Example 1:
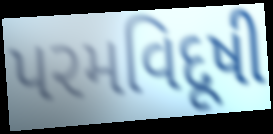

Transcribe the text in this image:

પરમવિદૂષી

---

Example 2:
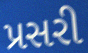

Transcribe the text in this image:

પ્રસરી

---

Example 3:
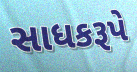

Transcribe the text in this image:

સાધકરૂપે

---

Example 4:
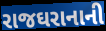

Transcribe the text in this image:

રાજઘરાનાની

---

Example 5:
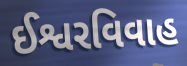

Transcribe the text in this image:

ઈશ્વરવિવાહ